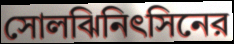
সোলঝিনিৎসিনের